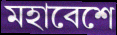
মহাবেশে